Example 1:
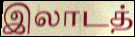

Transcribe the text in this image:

இலாடத்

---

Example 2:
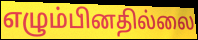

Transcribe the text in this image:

எழும்பினதில்லை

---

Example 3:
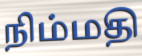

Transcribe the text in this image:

நிம்மதி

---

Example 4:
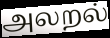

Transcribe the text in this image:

அலறல்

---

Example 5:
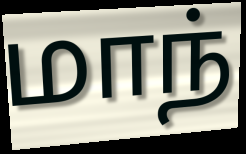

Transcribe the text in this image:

மாந்